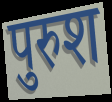
पुरुश